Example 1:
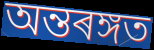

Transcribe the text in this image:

অন্তৰঙ্গত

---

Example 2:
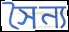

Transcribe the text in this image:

সৈন্য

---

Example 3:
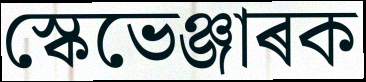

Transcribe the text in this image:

স্কেভেঞ্জাৰক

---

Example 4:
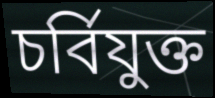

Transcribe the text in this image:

চৰ্বিযুক্ত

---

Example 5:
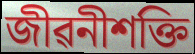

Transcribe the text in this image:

জীৱনীশক্তি